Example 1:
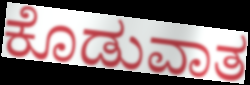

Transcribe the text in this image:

ಕೊಡುವಾತ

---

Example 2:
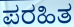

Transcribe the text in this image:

ಪರಹಿತ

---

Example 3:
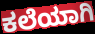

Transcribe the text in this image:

ಕಲೆಯಾಗಿ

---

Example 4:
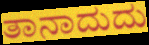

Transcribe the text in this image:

ತಾನಾದುದು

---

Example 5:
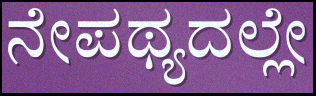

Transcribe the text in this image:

ನೇಪಥ್ಯದಲ್ಲೇ